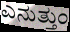
ಎನುತ್ತುಂ